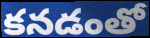
కనడంతో